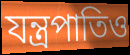
যন্ত্রপাতিও